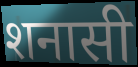
शनासी